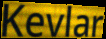
Kevlar